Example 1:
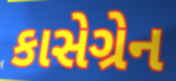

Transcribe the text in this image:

કાસેગ્રેન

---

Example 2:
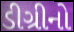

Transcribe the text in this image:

ડીગ્રીનો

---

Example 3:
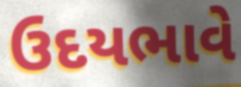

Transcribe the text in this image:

ઉદયભાવે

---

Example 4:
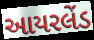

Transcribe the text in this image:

આયરલેંડ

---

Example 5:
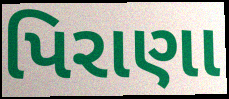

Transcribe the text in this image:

પિરાણા